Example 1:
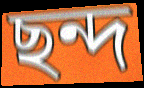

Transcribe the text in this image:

ছন্দ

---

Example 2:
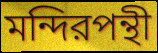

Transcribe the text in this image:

মন্দিরপন্থী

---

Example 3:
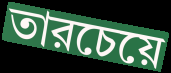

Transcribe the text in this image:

তারচেয়ে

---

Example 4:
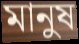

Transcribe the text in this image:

মানুষ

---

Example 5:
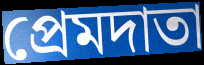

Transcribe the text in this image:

প্রেমদাতা